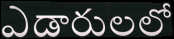
ఎడారులలో